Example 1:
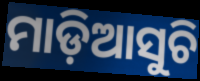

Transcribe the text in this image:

ମାଡ଼ିଆସୁଚି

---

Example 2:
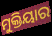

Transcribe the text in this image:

ମୁକ୍ତିୟାର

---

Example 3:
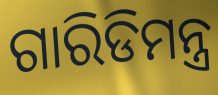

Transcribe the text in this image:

ଗାରିଡିମନ୍ତ୍ର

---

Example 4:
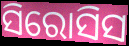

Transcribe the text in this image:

ସିରୋସିସ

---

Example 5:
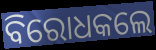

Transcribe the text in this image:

ବିରୋଧକଲେ